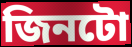
জিনটো